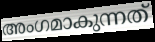
അംഗമാകുന്നത്